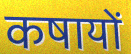
कषायों